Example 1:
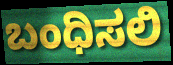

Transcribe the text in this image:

ಬಂಧಿಸಲಿ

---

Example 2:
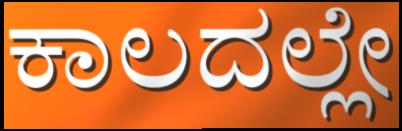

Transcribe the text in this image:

ಕಾಲದಲ್ಲೇ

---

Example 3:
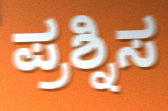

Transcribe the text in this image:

ಪ್ರಶ್ನಿಸ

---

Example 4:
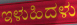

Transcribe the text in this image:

ಇಳುಹಿದಳು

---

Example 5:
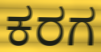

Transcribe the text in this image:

ಕರಗ